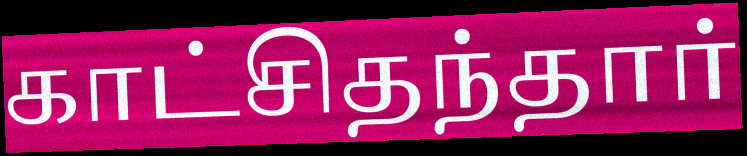
காட்சிதந்தார்